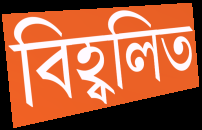
বিহ্বলিত